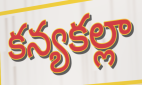
కన్యకల్లా